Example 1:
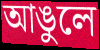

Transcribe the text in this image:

আঙুলে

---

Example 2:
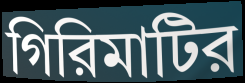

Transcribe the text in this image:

গিরিমাটির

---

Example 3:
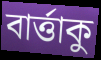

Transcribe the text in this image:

বার্ত্তাকু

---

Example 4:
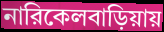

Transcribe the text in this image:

নারিকেলবাড়িয়ায়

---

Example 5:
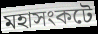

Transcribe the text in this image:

মহাসংকটে